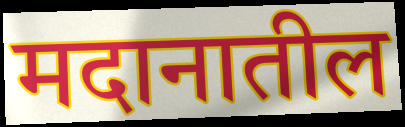
मदानातील